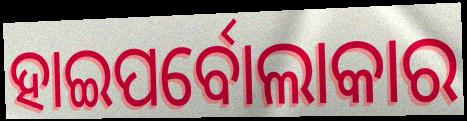
ହାଇପର୍ବୋଲାକାର